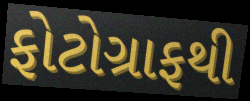
ફોટોગ્રાફથી